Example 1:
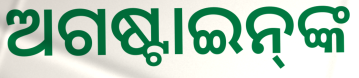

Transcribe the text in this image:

ଅଗଷ୍ଟାଇନ୍‌ଙ୍କ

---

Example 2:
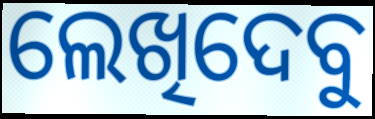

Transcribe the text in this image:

ଲେଖିଦେବୁ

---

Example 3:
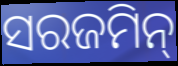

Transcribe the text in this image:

ସରଜମିନ୍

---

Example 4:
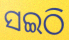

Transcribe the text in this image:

ସଇଠି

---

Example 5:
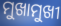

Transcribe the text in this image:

ମୁଖାମୁଖୀ